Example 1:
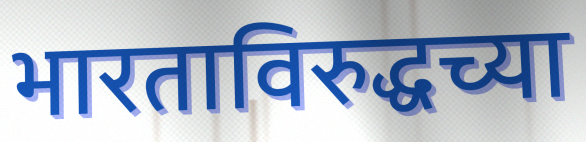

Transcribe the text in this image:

भारताविरुद्धच्या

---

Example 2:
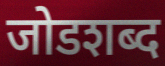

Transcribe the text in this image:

जोडशब्द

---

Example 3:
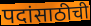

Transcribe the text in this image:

पदांसाठीची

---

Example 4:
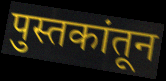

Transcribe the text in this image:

पुस्तकांतून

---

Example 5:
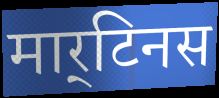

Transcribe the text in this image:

मार्टिनस